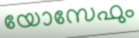
യോസേഫും